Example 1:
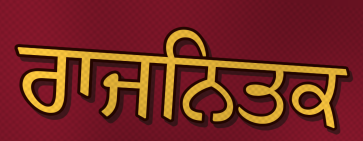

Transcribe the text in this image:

ਰਾਜਨਿਤਕ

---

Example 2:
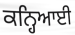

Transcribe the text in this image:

ਕਨ੍ਹਿਆਈ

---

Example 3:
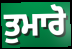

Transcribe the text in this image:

ਤੁਮਾਰੋ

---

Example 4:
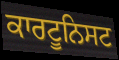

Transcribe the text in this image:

ਕਾਰਟੂਨਿਸਟ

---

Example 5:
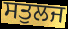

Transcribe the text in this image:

ਸਤੁਲਜ